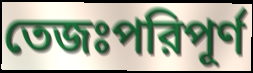
তেজঃপরিপূর্ণ